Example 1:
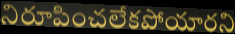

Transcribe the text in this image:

నిరూపించలేకపోయారని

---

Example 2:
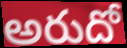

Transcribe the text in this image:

అరుదో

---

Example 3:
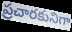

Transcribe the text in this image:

ప్రచారకునిగా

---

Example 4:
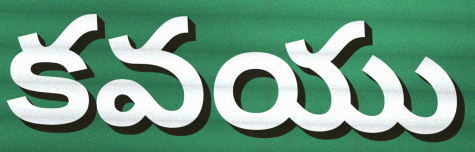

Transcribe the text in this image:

కవయు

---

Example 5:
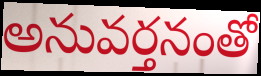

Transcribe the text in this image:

అనువర్తనంతో